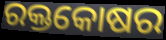
ରକ୍ତକୋଷର